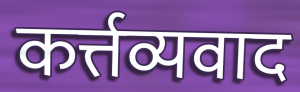
कर्त्तव्यवाद